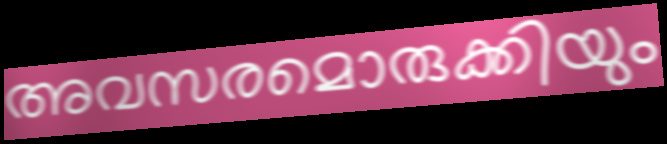
അവസരമൊരുക്കിയും